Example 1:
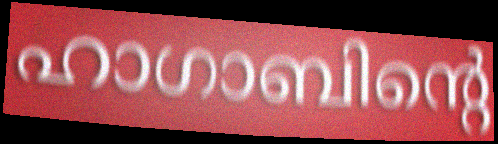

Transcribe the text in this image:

ഹാഗാബിന്റെ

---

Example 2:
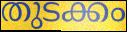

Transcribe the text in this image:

തുടക്കം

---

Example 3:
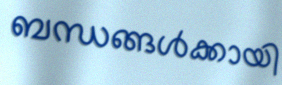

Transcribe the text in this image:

ബന്ധങ്ങൾക്കായി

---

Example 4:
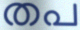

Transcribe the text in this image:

തപ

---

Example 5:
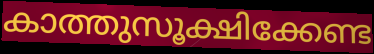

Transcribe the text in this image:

കാത്തുസൂക്ഷിക്കേണ്ട